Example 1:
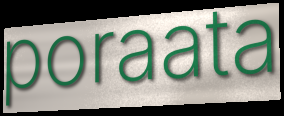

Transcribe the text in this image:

poraata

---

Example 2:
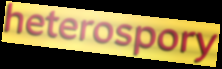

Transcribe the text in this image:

heterospory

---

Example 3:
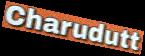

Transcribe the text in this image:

Charudutt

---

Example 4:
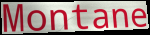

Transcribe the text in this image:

Montane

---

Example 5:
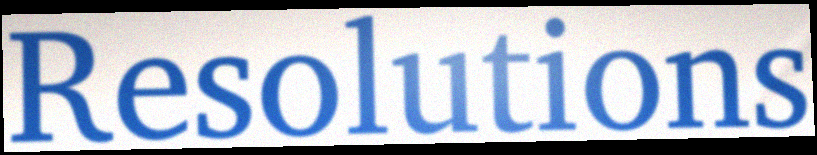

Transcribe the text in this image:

Resolutions